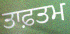
ਤਾਫ਼ਤਮ